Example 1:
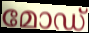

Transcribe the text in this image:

മോഡ്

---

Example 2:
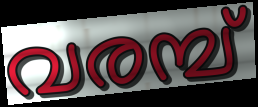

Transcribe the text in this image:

വരമ്പ്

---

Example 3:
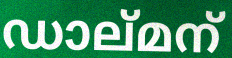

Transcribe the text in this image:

ഡാല്മന്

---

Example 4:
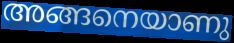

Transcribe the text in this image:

അങ്ങനെയാണു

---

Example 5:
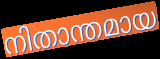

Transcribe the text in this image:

നിതാന്തമായ